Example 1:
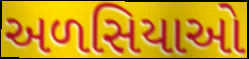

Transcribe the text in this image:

અળસિયાઓ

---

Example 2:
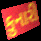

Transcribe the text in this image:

કુનારી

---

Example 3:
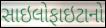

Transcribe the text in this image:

સાઇલોફાઇટાનો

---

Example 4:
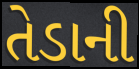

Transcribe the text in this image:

તેડાની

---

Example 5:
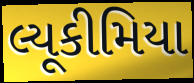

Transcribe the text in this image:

લ્યૂકીમિયા